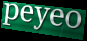
peyeo